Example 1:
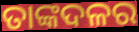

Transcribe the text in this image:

ତାଙ୍କଦଳର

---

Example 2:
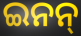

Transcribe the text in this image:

ଇନନ୍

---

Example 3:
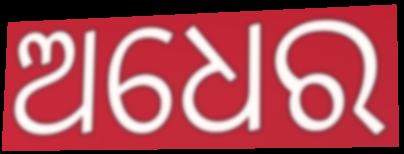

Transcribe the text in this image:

ଅଧେର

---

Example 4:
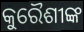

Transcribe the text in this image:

କୁରୈଶୀଙ୍କ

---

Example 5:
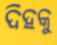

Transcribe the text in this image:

ଦିହକୁ